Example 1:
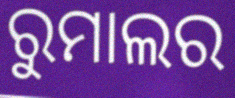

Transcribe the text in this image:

ରୁମାଲର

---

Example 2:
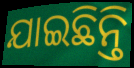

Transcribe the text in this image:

ଯାଇଛିନ୍ତି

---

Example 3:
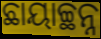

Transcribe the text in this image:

ଛାୟାଚ୍ଛନ୍ନ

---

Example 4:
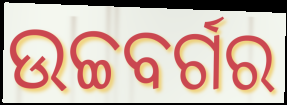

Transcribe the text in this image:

ଉଚ୍ଚବର୍ଗର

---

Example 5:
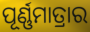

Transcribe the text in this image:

ପୂର୍ଣ୍ଣମାତ୍ରାର